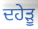
ਦਹੇੜੂ